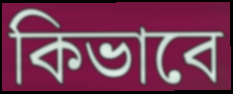
কিভাবে